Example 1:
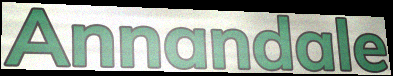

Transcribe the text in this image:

Annandale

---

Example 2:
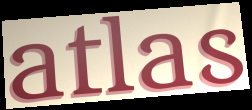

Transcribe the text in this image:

atlas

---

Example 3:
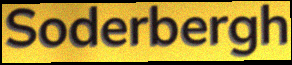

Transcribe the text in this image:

Soderbergh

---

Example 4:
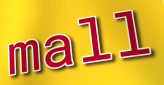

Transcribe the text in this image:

mall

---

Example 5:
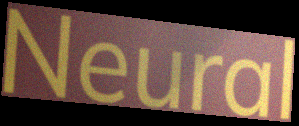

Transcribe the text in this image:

Neural